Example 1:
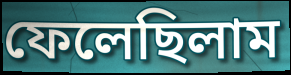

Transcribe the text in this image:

ফেলেছিলাম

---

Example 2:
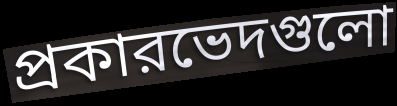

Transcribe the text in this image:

প্রকারভেদগুলো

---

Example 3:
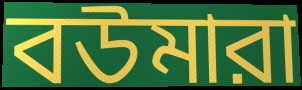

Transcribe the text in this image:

বউমারা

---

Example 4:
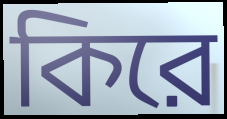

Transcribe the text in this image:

কিরে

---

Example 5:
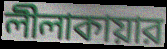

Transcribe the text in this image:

লীলাকায়ার